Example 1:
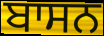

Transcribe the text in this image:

ਬਾਸਨ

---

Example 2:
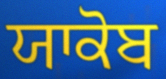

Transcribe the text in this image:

ਯਾਕੋਬ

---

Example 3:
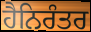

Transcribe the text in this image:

ਹੈਨਿਰੰਤਰ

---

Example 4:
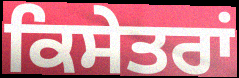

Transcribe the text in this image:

ਕਿਸੇਤਰਾਂ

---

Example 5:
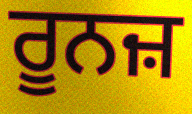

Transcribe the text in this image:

ਰੂਨਜ਼